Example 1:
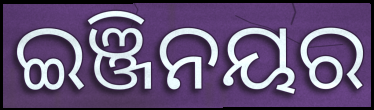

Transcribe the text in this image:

ଇଞ୍ଜିନୟର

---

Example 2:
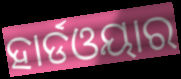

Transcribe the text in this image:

ହାର୍ଡଓୟାର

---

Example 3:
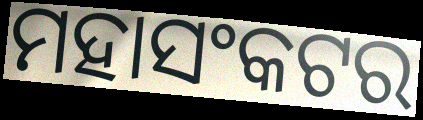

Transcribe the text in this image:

ମହାସଂକଟର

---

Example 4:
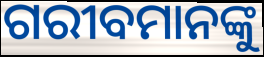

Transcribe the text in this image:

ଗରୀବମାନଙ୍କୁ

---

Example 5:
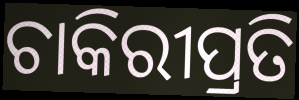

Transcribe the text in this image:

ଚାକିରୀପ୍ରତି